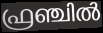
ഫ്രഞ്ചിൽ